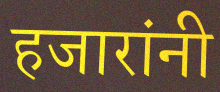
हजारांनी